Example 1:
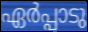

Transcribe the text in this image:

ഏർപ്പാടു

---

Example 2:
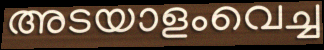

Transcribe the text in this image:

അടയാളംവെച്ച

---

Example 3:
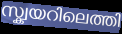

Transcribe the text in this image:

സ്ക്വയറിലെത്തി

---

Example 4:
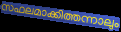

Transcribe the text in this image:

സഫലമാക്കിത്തന്നാലും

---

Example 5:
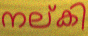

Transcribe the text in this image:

നല്കി